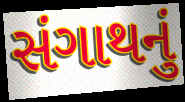
સંગાથનું